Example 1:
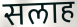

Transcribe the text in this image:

सलाह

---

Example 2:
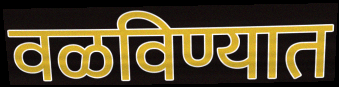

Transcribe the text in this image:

वळविण्यात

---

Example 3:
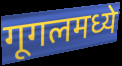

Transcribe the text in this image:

गूगलमध्ये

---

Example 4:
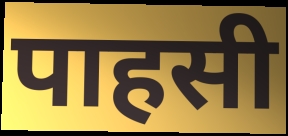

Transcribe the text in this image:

पाहसी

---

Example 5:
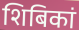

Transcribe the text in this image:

शिबिकां